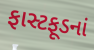
ફાસ્ટફૂડનાં